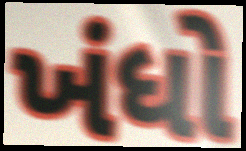
ખંધો